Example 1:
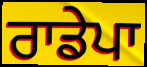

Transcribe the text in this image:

ਰਾਡੇਪਾ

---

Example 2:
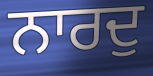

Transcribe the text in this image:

ਨਾਰਦੁ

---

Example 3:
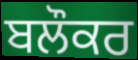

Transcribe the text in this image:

ਬਲੌਕਰ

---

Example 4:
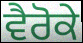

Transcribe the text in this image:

ਵੈਰੋਕੇ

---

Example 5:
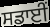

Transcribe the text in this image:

ਸਡਾਈਂ